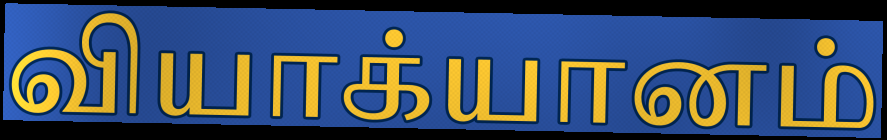
வியாக்யானம்